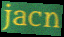
jacn